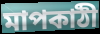
মাপকাঠী